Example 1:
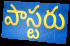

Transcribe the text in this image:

పాస్టరు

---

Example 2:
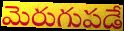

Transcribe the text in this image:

మెరుగుపడే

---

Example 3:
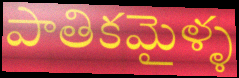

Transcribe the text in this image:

పాతికమైళ్ళ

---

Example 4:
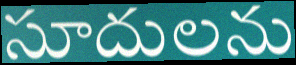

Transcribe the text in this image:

సూదులను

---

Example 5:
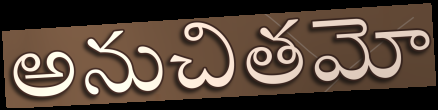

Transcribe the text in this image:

అనుచితమో